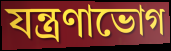
যন্ত্রণাভোগ